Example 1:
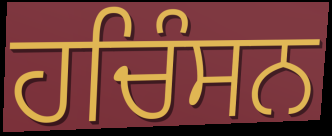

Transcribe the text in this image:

ਹਚਿੰਸਨ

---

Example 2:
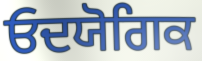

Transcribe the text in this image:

ਓਦਯੋਗਿਕ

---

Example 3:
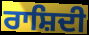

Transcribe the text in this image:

ਰਾਸ਼ਿਦੀ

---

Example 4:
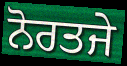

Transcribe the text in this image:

ਨੋਰਤਜੇ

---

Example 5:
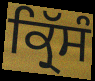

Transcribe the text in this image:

ਕ੍ਰਿੱਸੰ